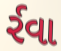
ર્રવા